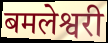
बमलेश्वरी